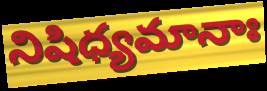
నిషిధ్యమానాః